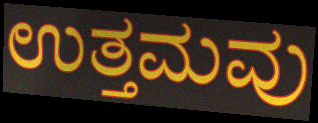
ಉತ್ತಮವು